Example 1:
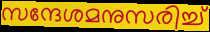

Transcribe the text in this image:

സന്ദേശമനുസരിച്ച്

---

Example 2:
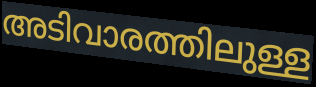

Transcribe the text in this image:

അടിവാരത്തിലുള്ള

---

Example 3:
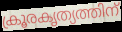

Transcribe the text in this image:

ക്രൂരകൃത്യത്തിന്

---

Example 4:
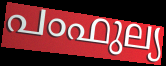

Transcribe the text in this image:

പംഫുല്യ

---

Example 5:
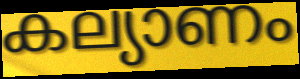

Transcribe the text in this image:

കല്യാണം